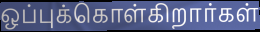
ஒப்புக்கொள்கிறார்கள்